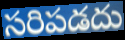
సరిపడదు